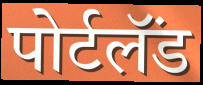
पोर्टलॅंड